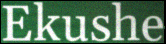
Ekushe